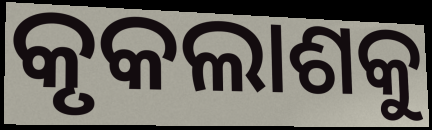
କୃକଲାଶକୁ